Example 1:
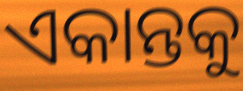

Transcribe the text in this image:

ଏକାନ୍ତକୁ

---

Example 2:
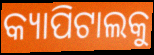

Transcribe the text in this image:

କ୍ୟାପିଟାଲକୁ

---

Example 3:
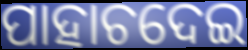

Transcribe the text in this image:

ପାହାଚଦେଇ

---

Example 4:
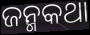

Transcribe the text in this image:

ଜନ୍ମକଥା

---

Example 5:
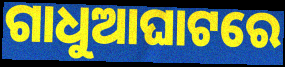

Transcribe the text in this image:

ଗାଧୁଆଘାଟରେ